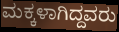
ಮಕ್ಕಳಾಗಿದ್ದವರು